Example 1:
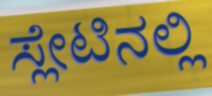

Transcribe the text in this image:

ಸ್ಲೇಟಿನಲ್ಲಿ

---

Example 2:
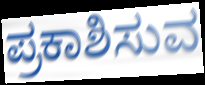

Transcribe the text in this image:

ಪ್ರಕಾಶಿಸುವ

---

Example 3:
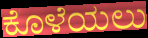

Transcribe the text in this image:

ಕೊಳೆಯಲು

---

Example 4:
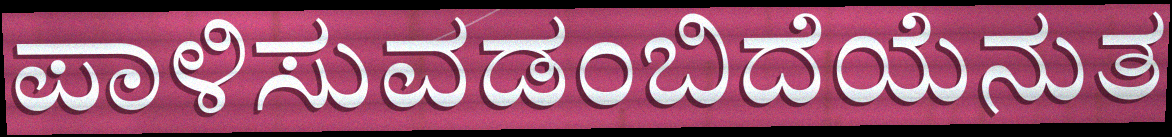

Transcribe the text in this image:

ಪಾಳಿಸುವಡಂಬಿದೆಯೆನುತ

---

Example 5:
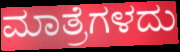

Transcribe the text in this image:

ಮಾತ್ರೆಗಳದು